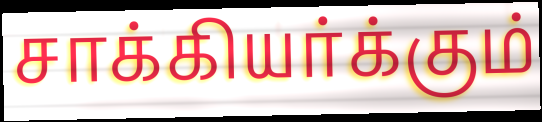
சாக்கியர்க்கும்